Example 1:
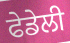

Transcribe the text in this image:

ਫੇਡੇਲੀ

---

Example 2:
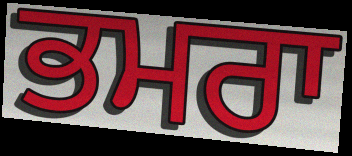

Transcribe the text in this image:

ਭਮਰਾ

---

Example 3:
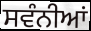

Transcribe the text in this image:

ਸਵੰਨੀਆਂ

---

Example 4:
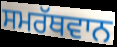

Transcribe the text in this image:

ਸਮਰੱਥਵਾਨ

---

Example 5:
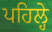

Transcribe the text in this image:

ਪਹਿਲ੍ਹੇ